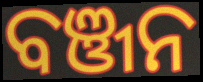
ବଞ୍ଜନ